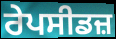
ਰੇਪਸੀਡਜ਼